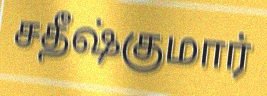
சதீஷ்குமார்